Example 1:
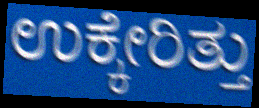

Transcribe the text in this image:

ಉಕ್ಕೇರಿತ್ತು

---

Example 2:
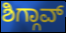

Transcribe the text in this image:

ಶಿಗ್ಗಾವ್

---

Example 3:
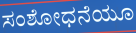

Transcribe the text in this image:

ಸಂಶೋಧನೆಯೂ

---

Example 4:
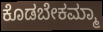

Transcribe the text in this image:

ಕೊಡಬೇಕಮ್ಮಾ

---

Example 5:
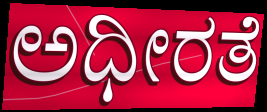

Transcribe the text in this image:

ಅಧೀರತೆ